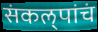
संकल्पांचं